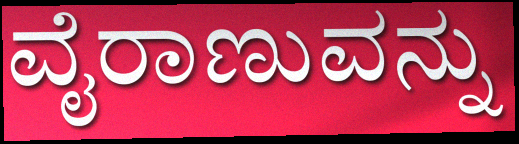
ವೈರಾಣುವನ್ನು